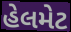
હેલમેટ